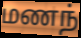
மணந்